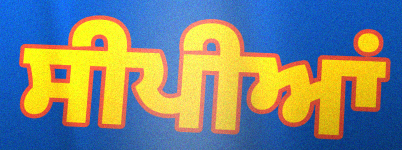
ਸੀਪੀਆਂ